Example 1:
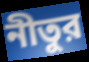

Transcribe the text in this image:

নীতুর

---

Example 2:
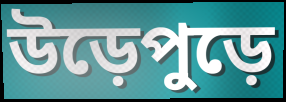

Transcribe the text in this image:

উড়েপুড়ে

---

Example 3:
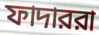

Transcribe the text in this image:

ফাদাররা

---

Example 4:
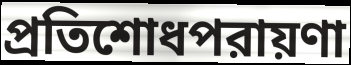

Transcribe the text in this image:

প্রতিশোধপরায়ণা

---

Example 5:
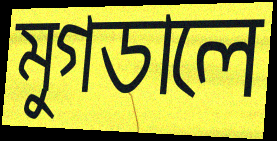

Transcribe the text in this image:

মুগডালে